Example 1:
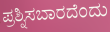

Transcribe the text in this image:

ಪ್ರಶ್ನಿಸಬಾರದೆಂದು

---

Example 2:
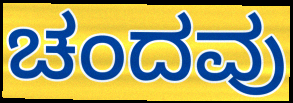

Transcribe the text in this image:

ಚಂದವು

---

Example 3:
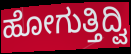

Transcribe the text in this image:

ಹೋಗುತ್ತಿದ್ವಿ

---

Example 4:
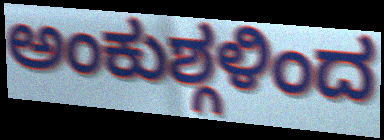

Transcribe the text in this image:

ಅಂಕುಶ್ಗಳಿಂದ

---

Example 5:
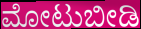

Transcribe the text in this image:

ಮೋಟುಬೀಡಿ